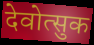
देवोत्सुक